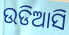
ଉଡିଆସି